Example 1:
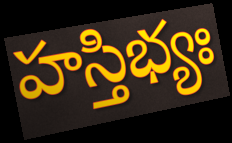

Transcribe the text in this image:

హస్తిభ్యః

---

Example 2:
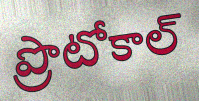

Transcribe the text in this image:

ప్రొటోకాల్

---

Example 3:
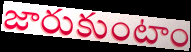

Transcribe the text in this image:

జారుకుంటాం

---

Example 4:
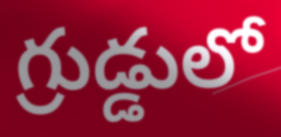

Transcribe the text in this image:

గ్రుడ్డులో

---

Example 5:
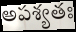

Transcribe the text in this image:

అపశ్యతః